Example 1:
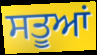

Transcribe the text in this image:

ਸਤੂਆਂ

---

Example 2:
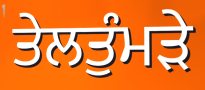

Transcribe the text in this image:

ਤੇਲਤੁੰਮੜੇ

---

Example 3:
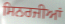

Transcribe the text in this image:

ਸਿਨਰਜੀਆਂ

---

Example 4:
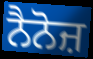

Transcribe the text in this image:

ਨੈਨੋਜ਼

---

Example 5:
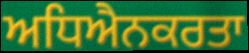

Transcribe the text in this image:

ਅਧਿਐਨਕਰਤਾ